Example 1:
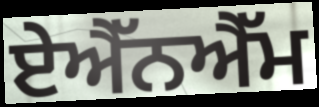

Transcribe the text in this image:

ਏਐੱਨਐੱਮ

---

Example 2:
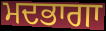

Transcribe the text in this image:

ਮਦਭਾਗਾ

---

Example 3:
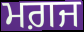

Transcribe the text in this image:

ਮਗ਼ਜ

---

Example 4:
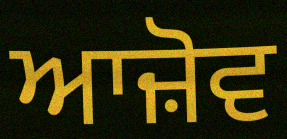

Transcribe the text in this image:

ਆਜ਼ੋਵ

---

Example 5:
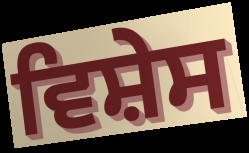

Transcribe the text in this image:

ਵਿਸ਼ੇਸ